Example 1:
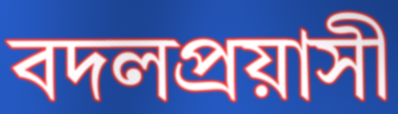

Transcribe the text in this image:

বদলপ্রয়াসী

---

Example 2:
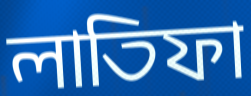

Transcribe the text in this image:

লাতিফা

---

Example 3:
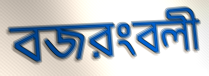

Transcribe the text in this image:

বজরংবলী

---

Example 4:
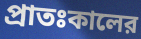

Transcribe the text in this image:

প্রাতঃকালের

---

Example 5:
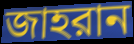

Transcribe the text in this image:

জাহরান